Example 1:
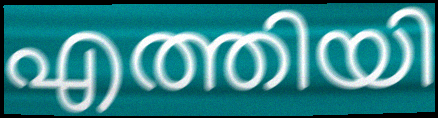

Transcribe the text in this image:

എത്തിയി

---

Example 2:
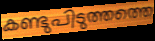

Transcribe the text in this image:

കണ്ടുപിടുത്തത്തെ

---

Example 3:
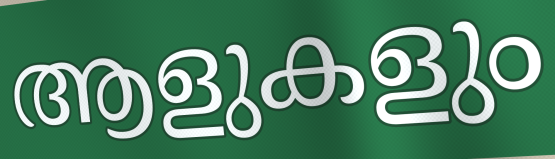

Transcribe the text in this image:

ആളുകളും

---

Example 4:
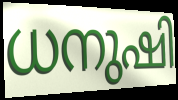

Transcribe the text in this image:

ധനുഷി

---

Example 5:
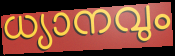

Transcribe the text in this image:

ധ്യാനവും